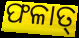
ଫଳାତ୍